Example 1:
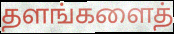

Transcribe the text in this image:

தளங்களைத்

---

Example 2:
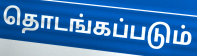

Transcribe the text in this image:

தொடங்கப்படும்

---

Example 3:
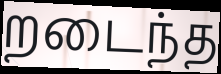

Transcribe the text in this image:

றடைந்த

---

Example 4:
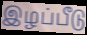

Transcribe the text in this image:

இழப்பீடு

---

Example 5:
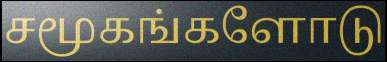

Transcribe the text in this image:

சமூகங்களோடு